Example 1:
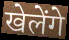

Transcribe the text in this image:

खेलेंगे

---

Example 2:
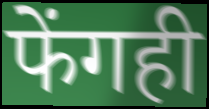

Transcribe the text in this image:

फेंगही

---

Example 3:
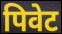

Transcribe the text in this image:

पिवेट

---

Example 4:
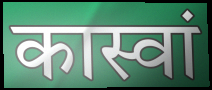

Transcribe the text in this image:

कास्वां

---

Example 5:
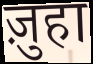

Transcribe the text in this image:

ज़ुहा